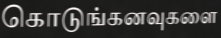
கொடுங்கனவுகளை